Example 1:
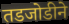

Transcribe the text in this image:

तडजोडीने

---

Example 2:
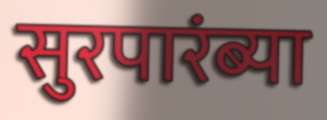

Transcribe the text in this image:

सुरपारंब्या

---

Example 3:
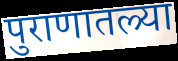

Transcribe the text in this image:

पुराणातल्या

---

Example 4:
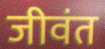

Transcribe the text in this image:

जीवंत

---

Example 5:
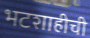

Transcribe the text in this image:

भटशाहीची